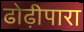
ढोढ़ीपारा